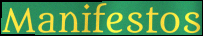
Manifestos